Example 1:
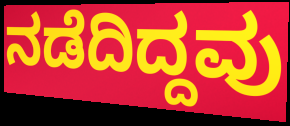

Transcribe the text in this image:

ನಡೆದಿದ್ದವು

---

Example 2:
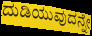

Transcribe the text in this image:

ದುಡಿಯುವುದನ್ನೇ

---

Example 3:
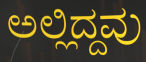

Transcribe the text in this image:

ಅಲ್ಲಿದ್ದವು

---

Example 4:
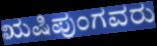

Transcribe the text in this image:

ಋಷಿಪುಂಗವರು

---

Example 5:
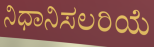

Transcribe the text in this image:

ನಿಧಾನಿಸಲರಿಯೆ